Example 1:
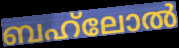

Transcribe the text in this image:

ബഹ്‌ലോൽ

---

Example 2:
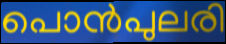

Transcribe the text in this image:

പൊൻപുലരി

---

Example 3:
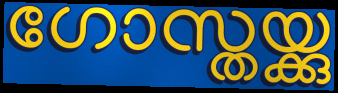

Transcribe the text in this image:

ഗോസ്തയ്ക്കു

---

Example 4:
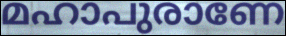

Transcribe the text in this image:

മഹാപുരാണേ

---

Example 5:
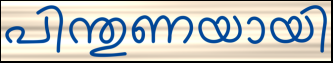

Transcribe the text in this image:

പിന്തുണയായി